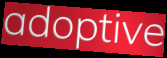
adoptive